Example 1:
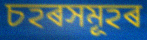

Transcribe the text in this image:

চহৰসমূহৰ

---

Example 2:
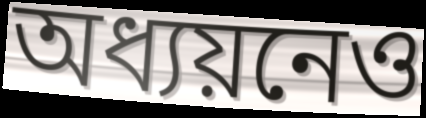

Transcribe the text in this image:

অধ্যয়নেও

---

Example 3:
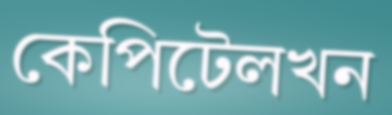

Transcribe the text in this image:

কেপিটেলখন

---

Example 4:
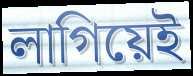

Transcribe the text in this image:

লাগিয়েই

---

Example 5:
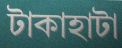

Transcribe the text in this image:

টাকাহাটা